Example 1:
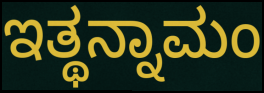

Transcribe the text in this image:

ಇತ್ಥನ್ನಾಮಂ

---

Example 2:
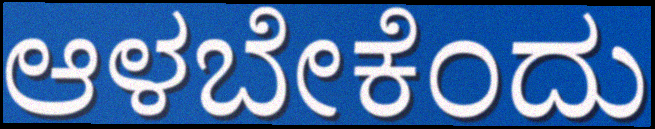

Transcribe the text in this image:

ಆಳಬೇಕೆಂದು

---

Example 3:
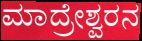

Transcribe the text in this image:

ಮಾದ್ರೇಶ್ವರನ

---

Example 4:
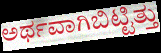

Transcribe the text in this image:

ಅರ್ಥವಾಗಿಬಿಟ್ಟಿತ್ತು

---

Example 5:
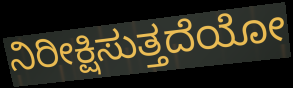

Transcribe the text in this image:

ನಿರೀಕ್ಷಿಸುತ್ತದೆಯೋ